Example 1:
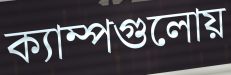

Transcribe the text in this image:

ক্যাম্পগুলোয়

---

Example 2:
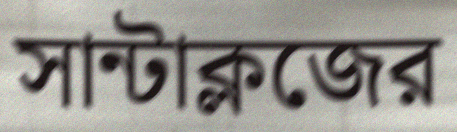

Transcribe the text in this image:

সান্টাক্লজের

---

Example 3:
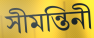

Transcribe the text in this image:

সীমন্তিনী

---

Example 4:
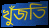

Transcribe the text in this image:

খুঁজতি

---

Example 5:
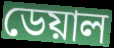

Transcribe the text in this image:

ডেয়াল